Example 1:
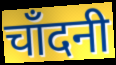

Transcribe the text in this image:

चाँदनी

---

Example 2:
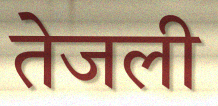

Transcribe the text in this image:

तेजली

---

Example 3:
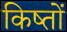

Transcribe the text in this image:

किष्तों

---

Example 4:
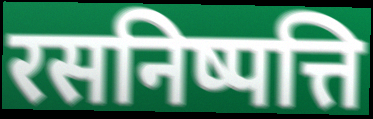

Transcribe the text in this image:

रसनिष्पत्ति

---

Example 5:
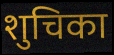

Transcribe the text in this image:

शुचिका